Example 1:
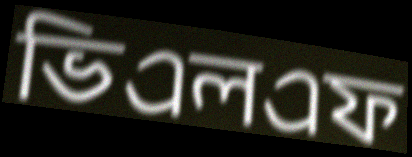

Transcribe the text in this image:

ভিএলএফ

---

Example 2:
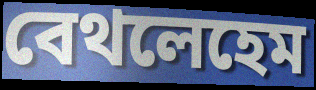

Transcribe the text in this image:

বেথলেহেম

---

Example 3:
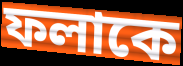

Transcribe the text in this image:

ফলাকে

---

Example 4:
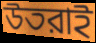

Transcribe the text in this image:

উতরাই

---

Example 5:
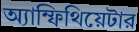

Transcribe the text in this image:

অ্যাম্ফিথিয়েটার